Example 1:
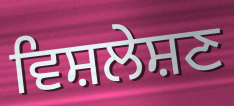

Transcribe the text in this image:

ਵਿਸ਼ਲੇਸ਼ਣ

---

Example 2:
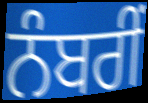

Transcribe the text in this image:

ਨੰਬਰੀਂ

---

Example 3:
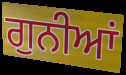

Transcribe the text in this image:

ਗੁਨੀਆਂ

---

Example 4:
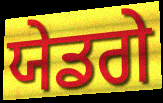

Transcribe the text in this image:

ਯੇਡਗੇ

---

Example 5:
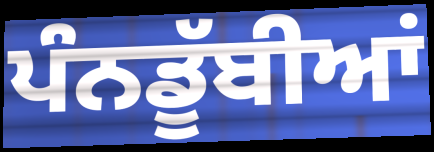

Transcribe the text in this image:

ਪੰਨਡੂੱਬੀਆਂ